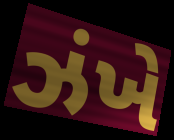
ઝંખે